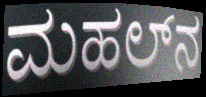
ಮಹಲ್‌ನ